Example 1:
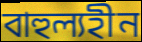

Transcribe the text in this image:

বাহুল্যহীন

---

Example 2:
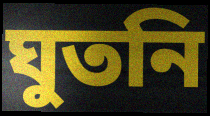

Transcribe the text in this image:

ঘুতনি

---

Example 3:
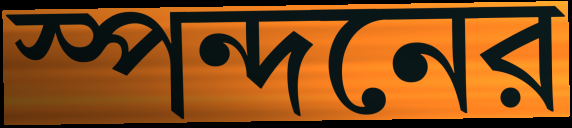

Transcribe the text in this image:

স্পন্দনের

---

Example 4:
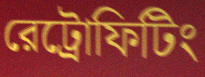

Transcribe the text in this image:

রেট্রোফিটিং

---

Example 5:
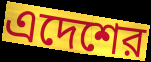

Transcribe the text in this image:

এদেশের